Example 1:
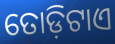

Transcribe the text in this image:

ତୋଡ଼ିଟାଏ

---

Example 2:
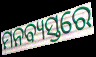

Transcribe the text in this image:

ମନବ୍ୟସ୍ତରେ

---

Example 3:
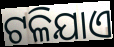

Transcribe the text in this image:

ଟଳିଯାଏ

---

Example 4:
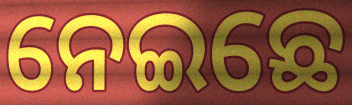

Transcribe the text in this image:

ନେଇଛେ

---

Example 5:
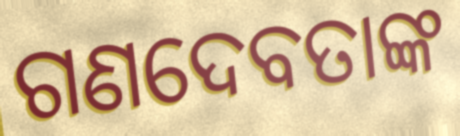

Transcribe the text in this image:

ଗଣଦେବତାଙ୍କ